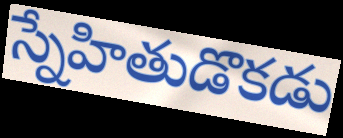
స్నేహితుడొకడు